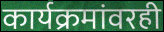
कार्यक्रमांवरही